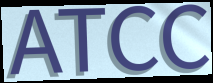
ATCC